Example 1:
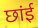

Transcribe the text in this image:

छांई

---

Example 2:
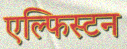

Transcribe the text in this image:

एल्फिस्टन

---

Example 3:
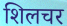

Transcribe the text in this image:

शिलचर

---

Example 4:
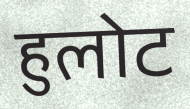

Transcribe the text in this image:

हुलोट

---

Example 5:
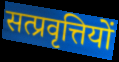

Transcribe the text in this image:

सत्प्रवृत्तियों